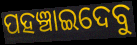
ପହଞ୍ଚାଇଦେବୁ